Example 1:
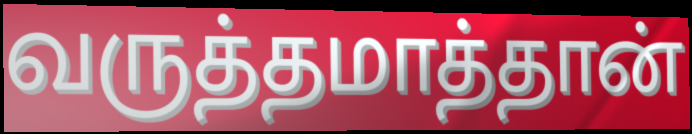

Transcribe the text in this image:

வருத்தமாத்தான்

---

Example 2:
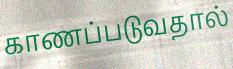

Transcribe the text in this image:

காணப்படுவதால்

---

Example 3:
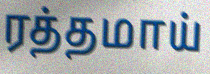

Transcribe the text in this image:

ரத்தமாய்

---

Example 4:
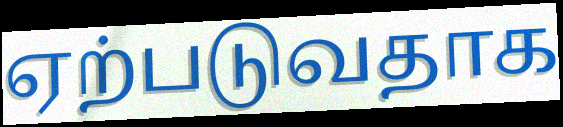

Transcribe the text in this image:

ஏற்படுவதாக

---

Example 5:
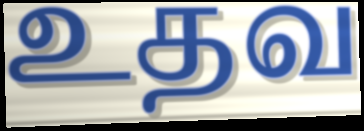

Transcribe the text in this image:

உதவ